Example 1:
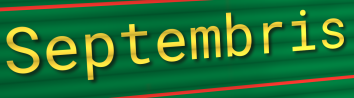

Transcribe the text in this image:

Septembris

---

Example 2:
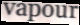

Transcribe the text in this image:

vapour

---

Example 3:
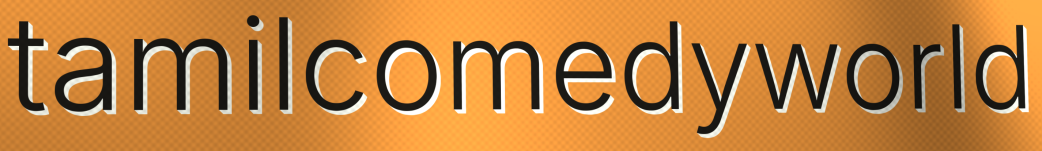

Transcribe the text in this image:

tamilcomedyworld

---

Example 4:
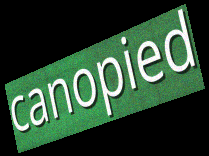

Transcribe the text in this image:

canopied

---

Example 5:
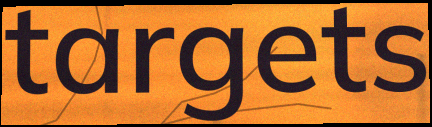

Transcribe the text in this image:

targets